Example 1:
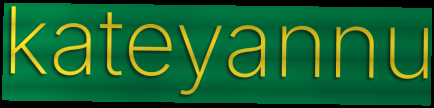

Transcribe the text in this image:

kateyannu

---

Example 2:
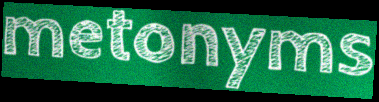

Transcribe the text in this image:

metonyms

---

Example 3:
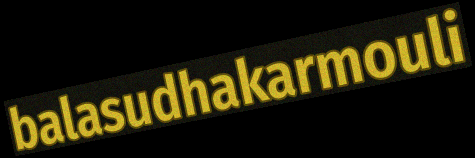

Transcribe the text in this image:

balasudhakarmouli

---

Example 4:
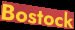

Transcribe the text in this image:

Bostock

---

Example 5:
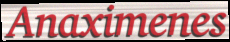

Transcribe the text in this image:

Anaximenes